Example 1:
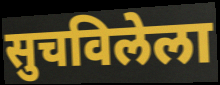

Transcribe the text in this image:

सुचविलेला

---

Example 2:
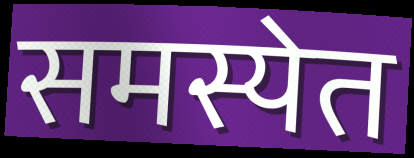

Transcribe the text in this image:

समस्येत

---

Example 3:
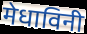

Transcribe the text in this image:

मेधाविनी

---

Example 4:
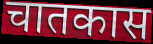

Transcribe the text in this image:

चातकास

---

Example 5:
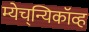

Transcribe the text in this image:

म्येच्‌न्यिकॉव्ह